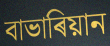
বাভাৰিয়ান